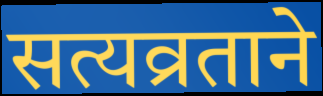
सत्यव्रताने